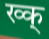
ख्क्